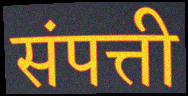
संपत्ती